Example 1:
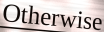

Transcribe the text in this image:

Otherwise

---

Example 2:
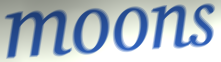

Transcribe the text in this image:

moons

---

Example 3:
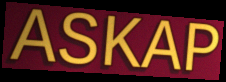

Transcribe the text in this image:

ASKAP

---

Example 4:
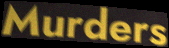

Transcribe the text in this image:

Murders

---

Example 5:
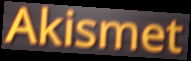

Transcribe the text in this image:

Akismet